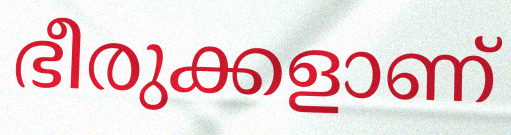
ഭീരുക്കളാണ്